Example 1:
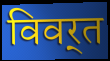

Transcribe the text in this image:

विवर्त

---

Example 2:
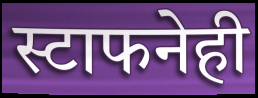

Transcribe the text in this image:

स्टाफनेही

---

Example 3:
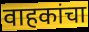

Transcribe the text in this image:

वाहकांचा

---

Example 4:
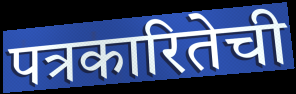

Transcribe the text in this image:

पत्रकारितेची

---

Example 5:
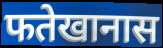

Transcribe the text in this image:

फतेखानास